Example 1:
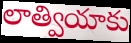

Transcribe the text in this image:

లాత్వియాకు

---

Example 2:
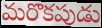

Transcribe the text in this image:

మరొకపుడు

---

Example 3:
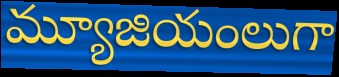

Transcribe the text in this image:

మ్యూజియంలుగా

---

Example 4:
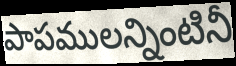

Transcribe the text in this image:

పాపములన్నింటినీ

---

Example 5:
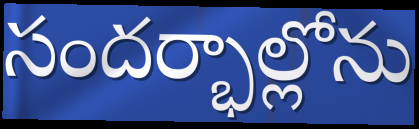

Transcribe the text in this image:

సందర్భాల్లోను